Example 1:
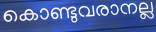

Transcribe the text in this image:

കൊണ്ടുവരാനല്ല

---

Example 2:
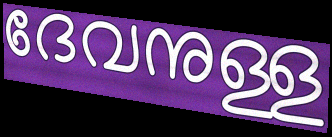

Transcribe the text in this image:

ദേവനുള്ള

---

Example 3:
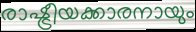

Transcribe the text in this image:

രാഷ്ട്രീയക്കാരനായും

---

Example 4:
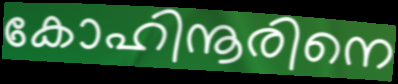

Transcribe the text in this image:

കോഹിനൂരിനെ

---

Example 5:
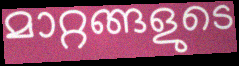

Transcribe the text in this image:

മാറ്റങ്ങളുടെ